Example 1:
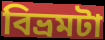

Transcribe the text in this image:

বিভ্রমটা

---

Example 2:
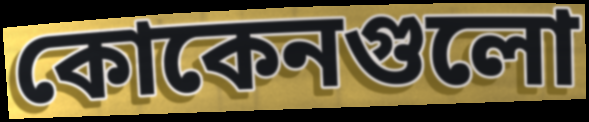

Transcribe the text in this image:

কোকেনগুলো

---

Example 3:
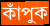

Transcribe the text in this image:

কাঁপুক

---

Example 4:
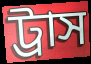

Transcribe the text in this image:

ট্রাস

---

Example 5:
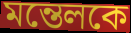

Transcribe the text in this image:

মন্তেলকে